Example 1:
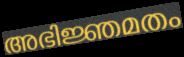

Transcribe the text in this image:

അഭിജ്ഞമതം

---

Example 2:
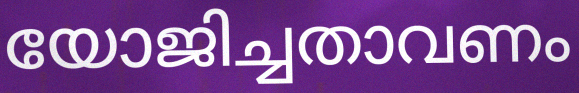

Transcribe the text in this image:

യോജിച്ചതാവണം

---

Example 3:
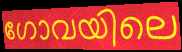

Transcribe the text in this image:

ഗോവയിലെ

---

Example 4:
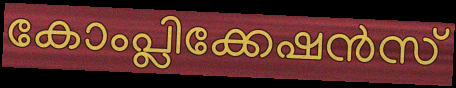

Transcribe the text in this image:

കോംപ്ലിക്കേഷൻസ്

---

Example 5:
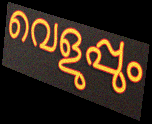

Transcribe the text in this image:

വെളുപ്പും